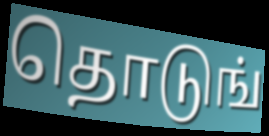
தொடுங்